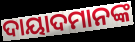
ଦାୟାଦମାନଙ୍କ